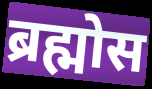
ब्रह्मोस